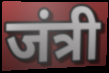
जंत्री